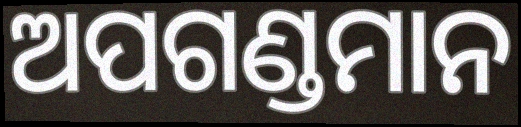
ଅପଗଣ୍ଡମାନ